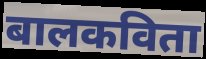
बालकविता